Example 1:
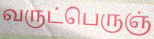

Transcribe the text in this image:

வருட்பெருஞ்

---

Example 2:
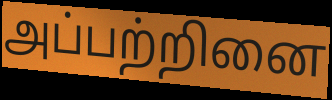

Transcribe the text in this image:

அப்பற்றினை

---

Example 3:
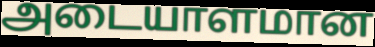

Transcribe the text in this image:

அடையாளமான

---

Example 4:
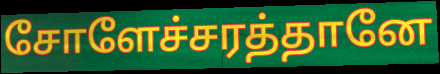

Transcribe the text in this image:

சோளேச்சரத்தானே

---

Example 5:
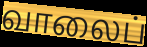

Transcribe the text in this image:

வாலைப்